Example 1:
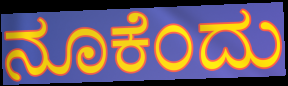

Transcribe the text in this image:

ನೂಕೆಂದು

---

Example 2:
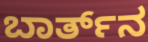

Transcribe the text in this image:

ಬಾರ್ತ್‌ನ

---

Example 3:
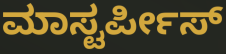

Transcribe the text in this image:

ಮಾಸ್ಟರ್ಪೀಸ್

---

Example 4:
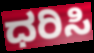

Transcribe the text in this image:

ಧರಿಸಿ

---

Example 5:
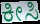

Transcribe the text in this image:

ಕೀಸಿ